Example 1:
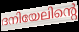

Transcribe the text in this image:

ദനിയേലിന്റെ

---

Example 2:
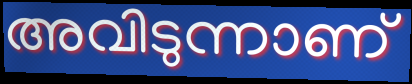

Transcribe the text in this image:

അവിടുന്നാണ്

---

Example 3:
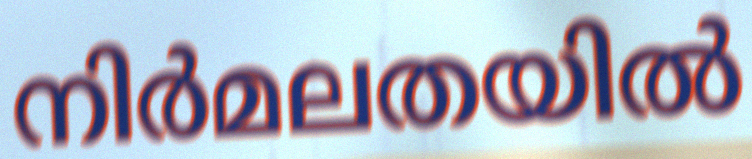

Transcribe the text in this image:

നിർമലതയിൽ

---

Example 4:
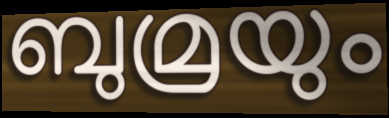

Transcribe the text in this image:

ബുമ്രയും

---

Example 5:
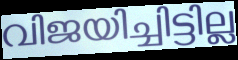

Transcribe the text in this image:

വിജയിച്ചിട്ടില്ല